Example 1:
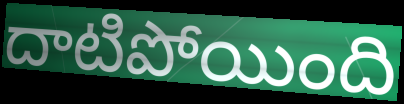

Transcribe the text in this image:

దాటిపోయింది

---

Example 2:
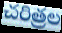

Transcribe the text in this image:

చరిత్రల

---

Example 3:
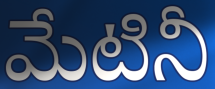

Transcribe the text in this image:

మేటినీ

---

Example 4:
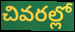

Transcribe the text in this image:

చివరల్లో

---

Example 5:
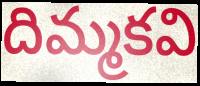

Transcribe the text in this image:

దిమ్మకవి